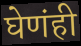
घेणंही